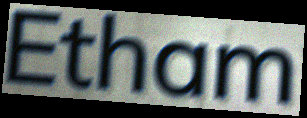
Etham